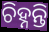
ଚିହ୍ନନ୍ତି